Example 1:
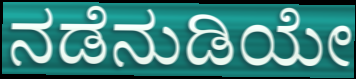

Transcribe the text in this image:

ನಡೆನುಡಿಯೇ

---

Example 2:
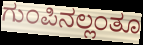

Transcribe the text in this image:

ಗುಂಪಿನಲ್ಲಂತೂ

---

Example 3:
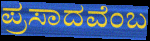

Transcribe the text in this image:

ಪ್ರಸಾದವೆಂಬ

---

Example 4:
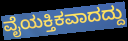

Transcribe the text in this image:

ವೈಯಕ್ತಿಕವಾದದ್ದು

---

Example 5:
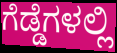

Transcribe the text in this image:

ಗೆಡ್ಡೆಗಳಲ್ಲಿ